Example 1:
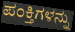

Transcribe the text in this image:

ಪಂಕ್ತಿಗಳನ್ನು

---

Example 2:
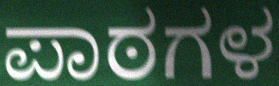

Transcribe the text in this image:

ಪಾಠಗಳ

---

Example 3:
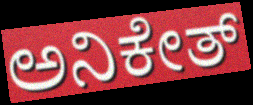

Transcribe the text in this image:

ಅನಿಕೇತ್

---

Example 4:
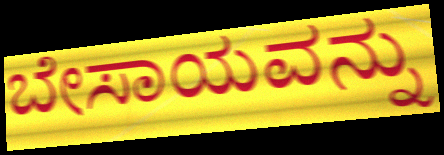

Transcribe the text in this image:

ಬೇಸಾಯವನ್ನು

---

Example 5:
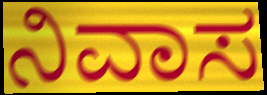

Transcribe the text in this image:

ನಿವಾಸ